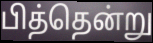
பித்தென்று